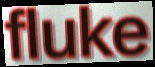
fluke